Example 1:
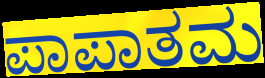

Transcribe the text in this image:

ಪಾಪಾತಮ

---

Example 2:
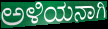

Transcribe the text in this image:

ಅಳಿಯನಾಗಿ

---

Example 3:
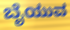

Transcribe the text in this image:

ಬೈಯುವ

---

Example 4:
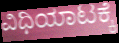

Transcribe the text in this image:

ವಿಧಿಯಾಟಕ್ಕೆ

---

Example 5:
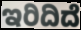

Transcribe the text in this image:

ಇರಿದಿದೆ